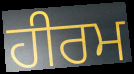
ਹੀਰਮ